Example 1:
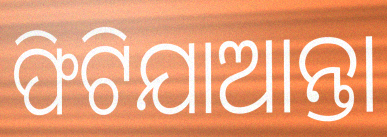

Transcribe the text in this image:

ଫିଟିଯାଆନ୍ତା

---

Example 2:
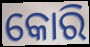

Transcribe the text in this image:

କୋରି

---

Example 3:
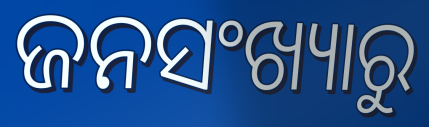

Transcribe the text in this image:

ଜନସଂଖ୍ୟାରୁ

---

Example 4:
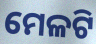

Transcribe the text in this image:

ମେଳଟି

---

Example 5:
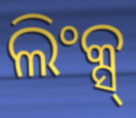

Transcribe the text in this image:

ଲିଂକ୍ସ୍